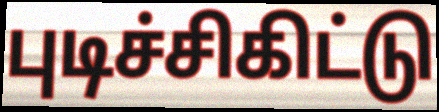
புடிச்சிகிட்டு